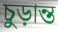
চুড়ান্ত